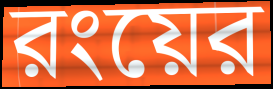
রংয়ের